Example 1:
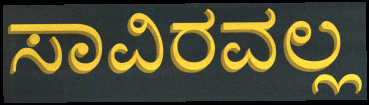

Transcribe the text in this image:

ಸಾವಿರವಲ್ಲ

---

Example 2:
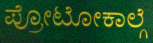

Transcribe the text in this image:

ಪ್ರೋಟೋಕಾಲ್ಗೆ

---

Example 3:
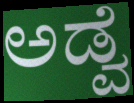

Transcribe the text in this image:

ಅಡ್ವೆ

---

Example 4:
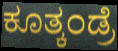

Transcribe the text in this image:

ಕೂತ್ಕಂಡ್ರೆ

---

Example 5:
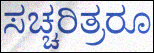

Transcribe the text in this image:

ಸಚ್ಚರಿತ್ರರೂ